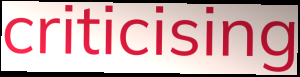
criticising